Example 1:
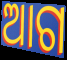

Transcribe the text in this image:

ଆଗ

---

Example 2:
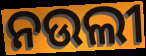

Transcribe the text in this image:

ନଉଲୀ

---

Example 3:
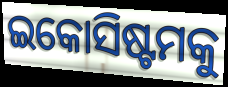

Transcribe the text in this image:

ଇକୋସିଷ୍ଟମକୁ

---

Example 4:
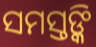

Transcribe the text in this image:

ସମସ୍ତଙ୍କି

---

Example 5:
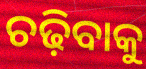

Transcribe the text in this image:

ଚଢ଼ିବାକୁ